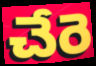
చేరె